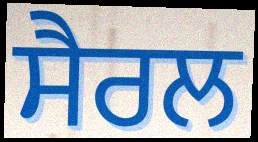
ਸੈਰਲ